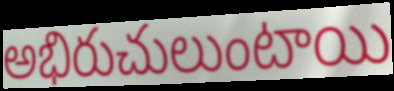
అభిరుచులుంటాయి